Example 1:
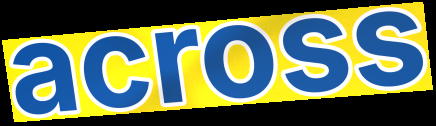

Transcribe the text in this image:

across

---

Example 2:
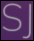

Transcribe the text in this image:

SJ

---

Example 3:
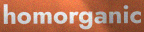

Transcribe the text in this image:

homorganic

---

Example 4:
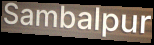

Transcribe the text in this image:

Sambalpur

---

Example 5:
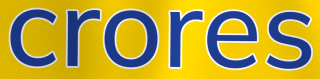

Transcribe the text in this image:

crores